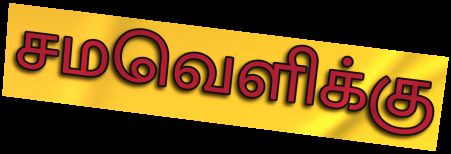
சமவெளிக்கு